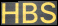
HBS